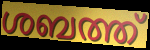
ശബത്ത്